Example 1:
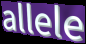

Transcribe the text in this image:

allele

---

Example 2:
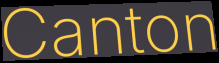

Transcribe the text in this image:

Canton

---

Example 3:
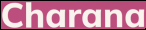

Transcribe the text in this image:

Charana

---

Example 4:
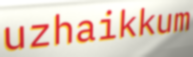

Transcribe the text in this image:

uzhaikkum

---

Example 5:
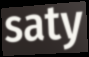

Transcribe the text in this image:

saty